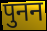
पुनन